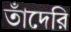
তাঁদেরি